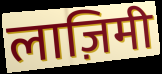
लाज़िमी